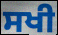
ਸਖੀ